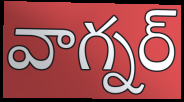
వాగ్నర్